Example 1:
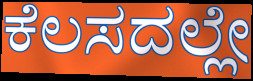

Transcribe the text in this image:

ಕೆಲಸದಲ್ಲೇ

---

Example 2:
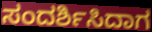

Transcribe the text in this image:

ಸಂದರ್ಶಿಸಿದಾಗ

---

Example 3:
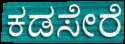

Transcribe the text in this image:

ಕಡಸೇರೆ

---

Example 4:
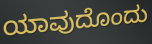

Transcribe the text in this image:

ಯಾವುದೊಂದು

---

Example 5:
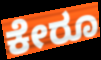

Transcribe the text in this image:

ಕೇರೂ